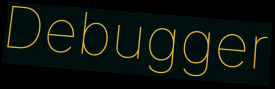
Debugger